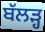
ਬੱਲੜ੍ਹ